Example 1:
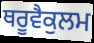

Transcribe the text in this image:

ਥਰੂਵੈਕੁਲਮ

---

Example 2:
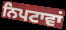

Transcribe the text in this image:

ਨਿਪਟਾਵਾਂ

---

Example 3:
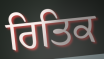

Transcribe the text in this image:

ਰਿਤਿਕ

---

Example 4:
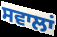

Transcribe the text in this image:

ਸਵਾਲਾਂ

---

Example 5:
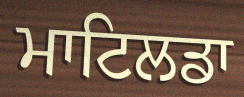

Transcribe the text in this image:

ਮਾਟਿਲਡਾ